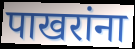
पाखरांना